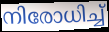
നിരോധിച്ച്